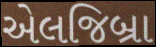
એલજિબ્રા